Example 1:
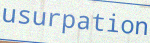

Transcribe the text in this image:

usurpation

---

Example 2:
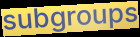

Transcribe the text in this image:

subgroups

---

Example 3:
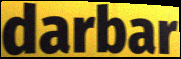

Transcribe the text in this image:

darbar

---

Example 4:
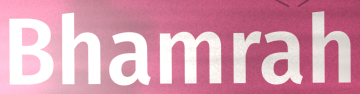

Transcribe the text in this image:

Bhamrah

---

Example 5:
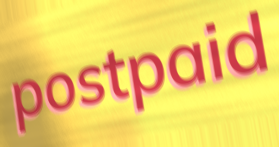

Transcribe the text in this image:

postpaid